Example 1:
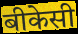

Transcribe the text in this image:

बीकेसी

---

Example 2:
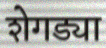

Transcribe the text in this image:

शेगड्या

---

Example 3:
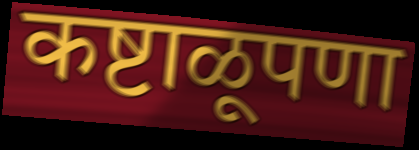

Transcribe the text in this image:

कष्टाळूपणा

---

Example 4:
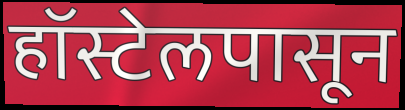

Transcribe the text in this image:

हॉस्टेलपासून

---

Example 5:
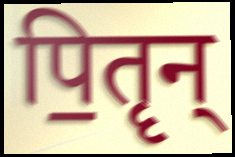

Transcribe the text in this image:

पि॒तॄन्